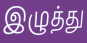
இழுத்து